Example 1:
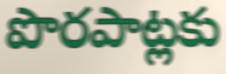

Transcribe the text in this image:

పొరపాట్లకు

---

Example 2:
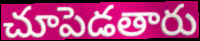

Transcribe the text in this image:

చూపెడతారు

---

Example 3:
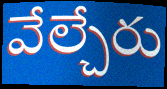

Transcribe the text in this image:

వేల్చేరు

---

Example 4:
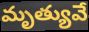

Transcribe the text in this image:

మృత్యువే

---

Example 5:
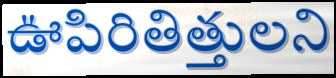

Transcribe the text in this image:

ఊపిరితిత్తులని